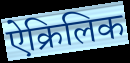
ऐक्रिलिक